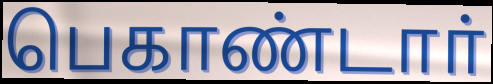
பெகாண்டார்